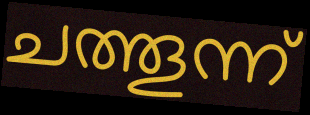
ചത്തൂന്ന്